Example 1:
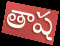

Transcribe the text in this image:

తాష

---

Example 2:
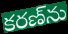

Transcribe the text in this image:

కరణ్‌ను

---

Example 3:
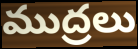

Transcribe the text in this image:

ముద్రలు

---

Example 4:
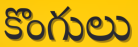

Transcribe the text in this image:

కొంగులు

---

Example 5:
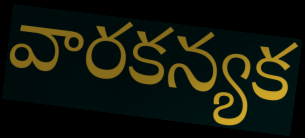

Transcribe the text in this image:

వారకన్యక